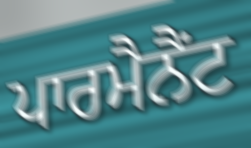
ਪਾਰਮੈਨੈਂਟ